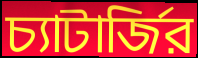
চ্যাটার্জির